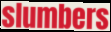
slumbers